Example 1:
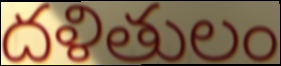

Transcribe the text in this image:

దళితులం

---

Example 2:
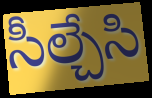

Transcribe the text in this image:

సీల్చేసి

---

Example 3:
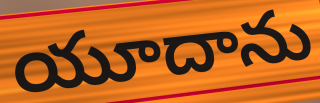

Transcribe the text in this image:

యూదాను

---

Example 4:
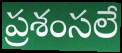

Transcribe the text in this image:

ప్రశంసలే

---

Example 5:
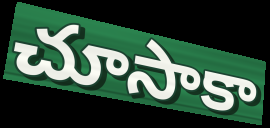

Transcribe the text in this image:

చూసాకా